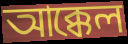
আক্কেল